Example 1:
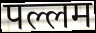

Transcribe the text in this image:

पल्लम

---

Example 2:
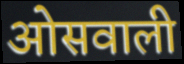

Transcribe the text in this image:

ओसवाली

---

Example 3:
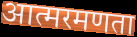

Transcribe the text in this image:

आत्मरमणता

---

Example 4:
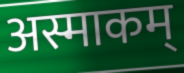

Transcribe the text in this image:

अस्माकम्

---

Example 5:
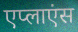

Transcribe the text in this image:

एप्लाएंस